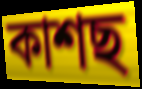
কাশছ